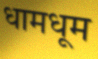
धामधूम